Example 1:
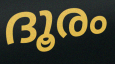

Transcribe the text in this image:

ദൂരം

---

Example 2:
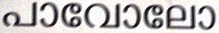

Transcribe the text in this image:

പാവോലോ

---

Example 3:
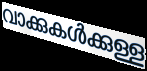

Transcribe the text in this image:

വാക്കുകൾക്കുള്ള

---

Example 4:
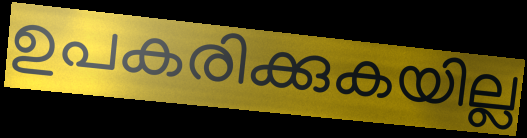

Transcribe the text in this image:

ഉപകരിക്കുകയില്ല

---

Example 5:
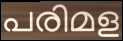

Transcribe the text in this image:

പരിമള